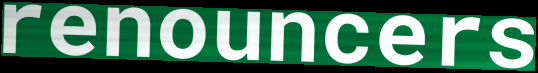
renouncers